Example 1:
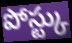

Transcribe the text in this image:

పోస్ట్కు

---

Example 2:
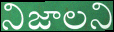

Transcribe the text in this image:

నిజాలని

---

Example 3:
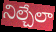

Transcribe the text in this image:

నిల్చేలా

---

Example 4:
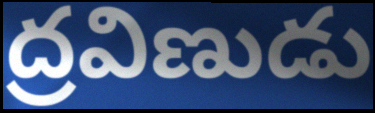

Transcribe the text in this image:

ద్రవిణుడు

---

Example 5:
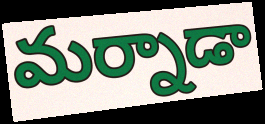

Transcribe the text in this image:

మర్నాడా